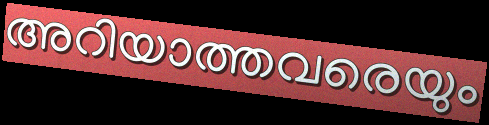
അറിയാത്തവരെയും